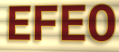
EFEO